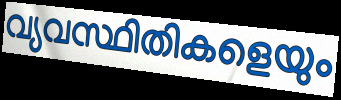
വ്യവസ്ഥിതികളെയും